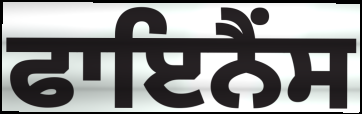
ਫਾਇਨੈਂਸ